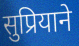
सुप्रियाने